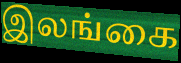
இலங்கை